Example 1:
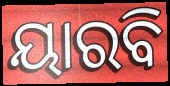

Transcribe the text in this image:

ୟାରବି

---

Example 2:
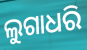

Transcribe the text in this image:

ଲୁଗାଧରି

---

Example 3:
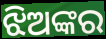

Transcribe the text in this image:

ଝିଅଙ୍କର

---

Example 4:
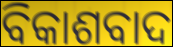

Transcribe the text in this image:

ବିକାଶବାଦ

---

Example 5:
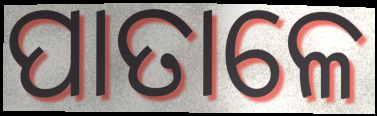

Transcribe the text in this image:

ପାତାଳେ